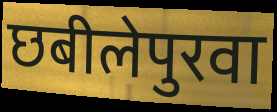
छबीलेपुरवा